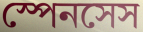
স্পেনসেস